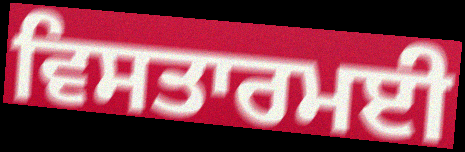
ਵਿਸਤਾਰਮਈ